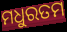
ମଧୁରତମ